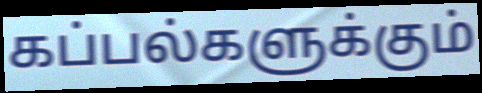
கப்பல்களுக்கும்